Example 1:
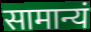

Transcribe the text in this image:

सामान्यं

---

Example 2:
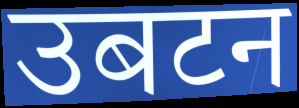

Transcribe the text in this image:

उबटन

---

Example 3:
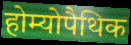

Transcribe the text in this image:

होम्‍योपैथिक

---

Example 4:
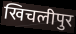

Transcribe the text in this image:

खिचलीपुर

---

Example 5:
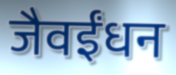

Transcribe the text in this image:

जैवईंधन